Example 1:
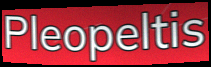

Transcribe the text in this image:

Pleopeltis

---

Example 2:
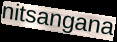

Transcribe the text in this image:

nitsangana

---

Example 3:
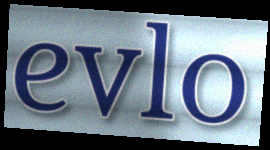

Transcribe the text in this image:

evlo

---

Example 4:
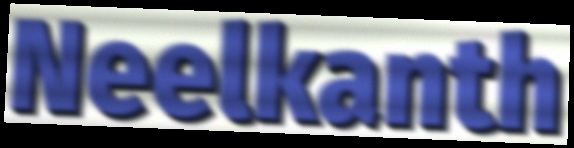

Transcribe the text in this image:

Neelkanth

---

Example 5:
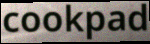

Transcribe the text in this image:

cookpad